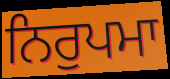
ਨਿਰੁਪਮਾ